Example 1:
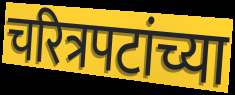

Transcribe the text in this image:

चरित्रपटांच्या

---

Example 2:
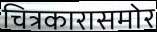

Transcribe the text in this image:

चित्रकारासमोर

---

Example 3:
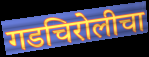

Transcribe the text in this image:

गडचिरोलीचा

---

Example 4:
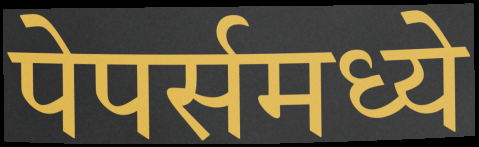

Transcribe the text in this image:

पेपर्समध्ये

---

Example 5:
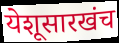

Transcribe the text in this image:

येशूसारखंच